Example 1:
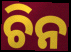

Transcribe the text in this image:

ଚିନ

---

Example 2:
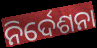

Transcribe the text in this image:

ନିର୍ଦେଶନା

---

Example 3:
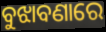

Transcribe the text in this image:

ବୁଝାବଣାରେ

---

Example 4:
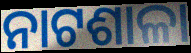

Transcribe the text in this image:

ନାଟଶାଳା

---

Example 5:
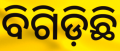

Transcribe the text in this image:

ବିଗିଡ଼ିଛି